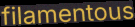
filamentous